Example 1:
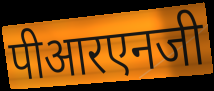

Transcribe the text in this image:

पीआरएनजी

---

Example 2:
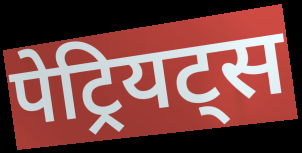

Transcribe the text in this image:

पेट्रियट्स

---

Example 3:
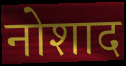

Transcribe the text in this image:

नोशाद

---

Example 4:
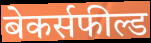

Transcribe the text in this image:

बेकर्सफील्ड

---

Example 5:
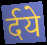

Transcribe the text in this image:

र्दये